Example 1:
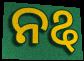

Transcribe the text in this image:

ନୡ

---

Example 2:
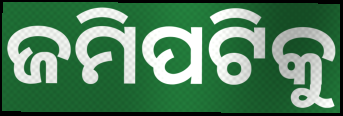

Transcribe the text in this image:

ଜମିପଟିକୁ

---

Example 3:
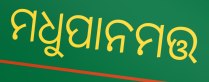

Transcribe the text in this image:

ମଧୁପାନମତ୍ତ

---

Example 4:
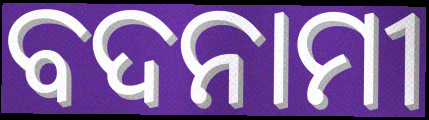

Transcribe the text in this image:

ବଦନାମୀ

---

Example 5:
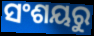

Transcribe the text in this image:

ସଂଶୟରୁ